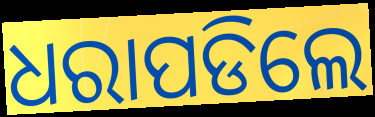
ଧରାପଡିଲେ